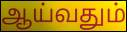
ஆய்வதும்